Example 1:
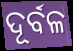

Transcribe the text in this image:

ଦୂର୍ବଳ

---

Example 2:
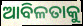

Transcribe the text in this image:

ଆବିଳତାକୁ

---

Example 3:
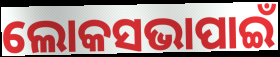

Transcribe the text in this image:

ଲୋକସଭାପାଇଁ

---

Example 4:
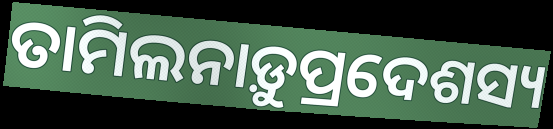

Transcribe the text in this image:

ତାମିଲନାଡ଼ୁପ୍ରଦେଶସ୍ୟ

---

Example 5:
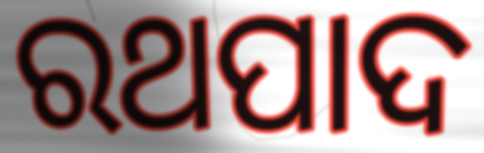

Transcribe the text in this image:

ରଥପାଦ